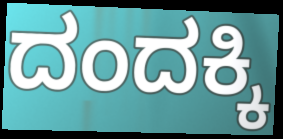
ದಂದಕ್ಕಿ